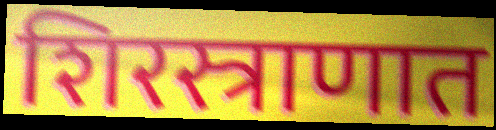
शिरस्त्राणात